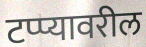
टप्प्यावरील